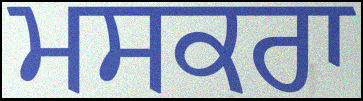
ਮਸਕਰਾ